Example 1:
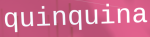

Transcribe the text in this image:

quinquina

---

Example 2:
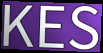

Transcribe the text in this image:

KES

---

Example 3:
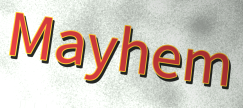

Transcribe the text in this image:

Mayhem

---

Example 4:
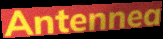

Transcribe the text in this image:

Antennea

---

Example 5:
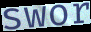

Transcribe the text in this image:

swor